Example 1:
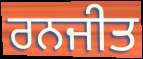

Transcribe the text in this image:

ਰਨਜੀਤ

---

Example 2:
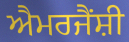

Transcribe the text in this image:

ਐਮਰਜੈਂਸ਼ੀ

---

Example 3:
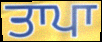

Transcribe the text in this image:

ਤਾਪਾ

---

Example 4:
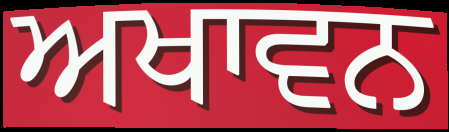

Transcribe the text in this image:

ਅਖਾਵਨ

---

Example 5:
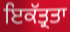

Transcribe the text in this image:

ਇਕੱਤ੍ਰਤਾ